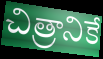
చిత్రానికే